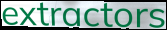
extractors